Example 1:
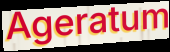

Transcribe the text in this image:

Ageratum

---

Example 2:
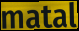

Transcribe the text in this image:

matal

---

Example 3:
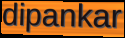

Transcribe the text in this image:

dipankar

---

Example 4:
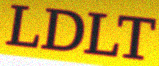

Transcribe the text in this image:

LDLT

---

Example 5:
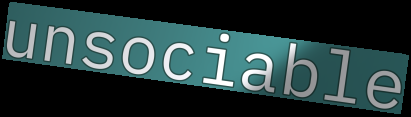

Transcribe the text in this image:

unsociable